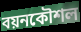
বয়নকৌশল